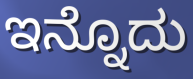
ಇನ್ನೊದು